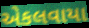
એકલવાયા